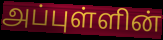
அப்புள்ளின்